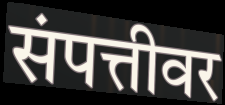
संपत्तीवर